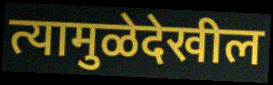
त्यामुळेदेखील